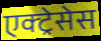
एक्ट्रेसेस